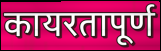
कायरतापूर्ण